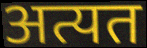
अत्यत